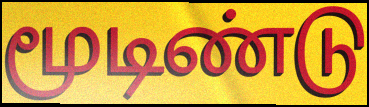
மூடிண்டு